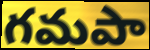
గమపా